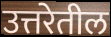
उत्तरेतील